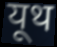
यूथ